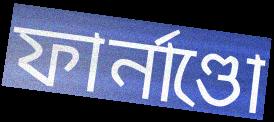
ফাৰ্নাণ্ডো